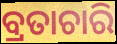
ବ୍ରତାଚାରି